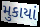
મુકાયાં